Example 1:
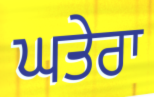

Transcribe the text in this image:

ਘਤੇਰਾ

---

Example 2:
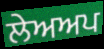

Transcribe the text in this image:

ਲੇਅਅਪ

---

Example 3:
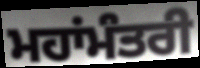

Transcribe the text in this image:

ਮਹਾਂਮੰਤਰੀ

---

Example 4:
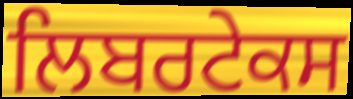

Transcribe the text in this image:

ਲਿਬਰਟੇਕਸ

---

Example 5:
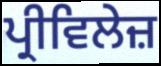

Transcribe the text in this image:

ਪ੍ਰੀਵਿਲੇਜ਼